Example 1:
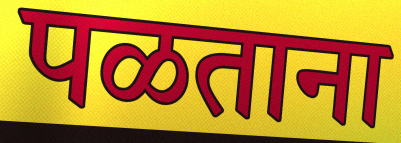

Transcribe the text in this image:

पळताना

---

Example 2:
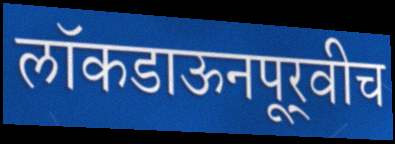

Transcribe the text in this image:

लॉकडाऊनपूर्वीच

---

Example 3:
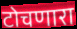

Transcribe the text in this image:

टोचणारा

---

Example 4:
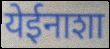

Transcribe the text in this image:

येईनाशा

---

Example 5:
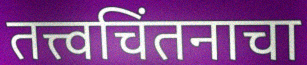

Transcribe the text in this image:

तत्त्वचिंतनाचा